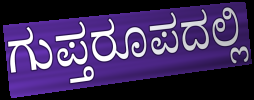
ಗುಪ್ತರೂಪದಲ್ಲಿ